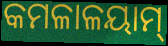
କମଳାଳୟାମ୍